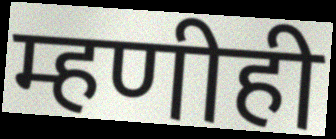
म्हणीही